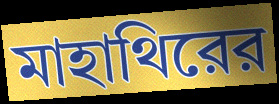
মাহাথিরের